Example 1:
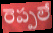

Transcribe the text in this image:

రెప్పలే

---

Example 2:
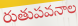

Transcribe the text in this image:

రుతుపవనాల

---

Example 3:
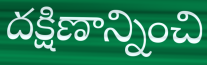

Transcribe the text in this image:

దక్షిణాన్నించి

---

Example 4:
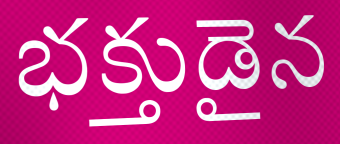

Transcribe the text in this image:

భక్తుడైన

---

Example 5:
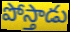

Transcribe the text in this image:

పోస్తాడు